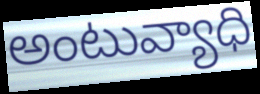
అంటువ్యాధి